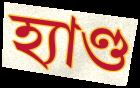
হ্যাণ্ড